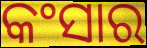
କଂସାର